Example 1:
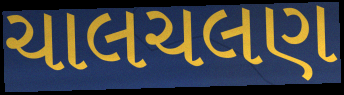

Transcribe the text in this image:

ચાલચલણ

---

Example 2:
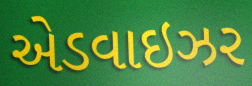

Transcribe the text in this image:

એડવાઇઝર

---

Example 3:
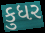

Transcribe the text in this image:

કુધર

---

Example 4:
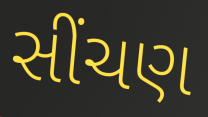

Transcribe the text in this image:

સીંચણ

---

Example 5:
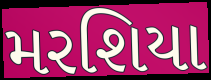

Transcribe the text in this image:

મરશિયા